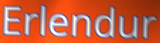
Erlendur